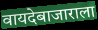
वायदेबाजाराला